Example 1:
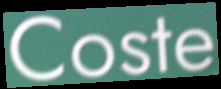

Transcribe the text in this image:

Coste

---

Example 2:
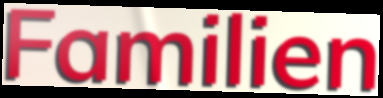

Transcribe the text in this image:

Familien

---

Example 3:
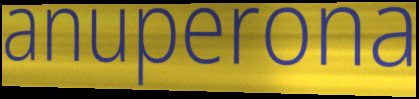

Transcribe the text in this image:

anuperona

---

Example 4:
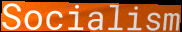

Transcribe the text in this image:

Socialism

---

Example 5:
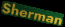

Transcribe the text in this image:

Sherman